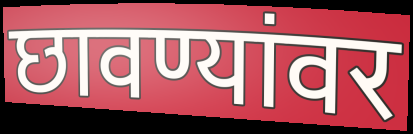
छावण्यांवर